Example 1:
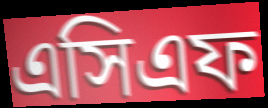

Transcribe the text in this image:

এসিএফ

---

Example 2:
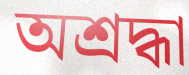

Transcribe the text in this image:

অশ্রদ্ধা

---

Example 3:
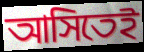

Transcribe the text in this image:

আসিতেই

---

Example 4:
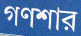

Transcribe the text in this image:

গণশার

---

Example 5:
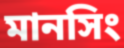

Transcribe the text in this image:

মানসিং